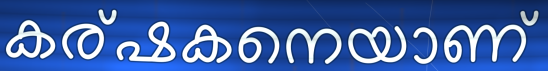
കര്ഷകനെയാണ്